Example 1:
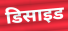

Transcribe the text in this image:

डिसाइड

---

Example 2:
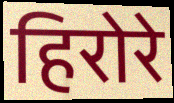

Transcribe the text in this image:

हिरोरे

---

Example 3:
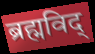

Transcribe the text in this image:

ब्रह्मविद्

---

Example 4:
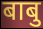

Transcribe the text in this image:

बाबु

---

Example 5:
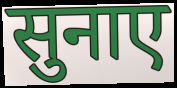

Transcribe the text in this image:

सुनाए